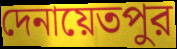
দেনায়েতপুর